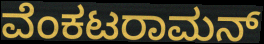
ವೆಂಕಟರಾಮನ್